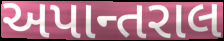
અપાન્તરાલ